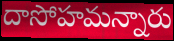
దాసోహమన్నారు